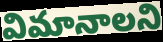
విమానాలని